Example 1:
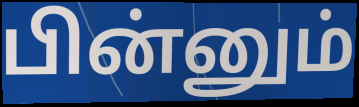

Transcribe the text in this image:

பின்னும்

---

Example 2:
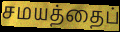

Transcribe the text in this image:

சமயத்தைப்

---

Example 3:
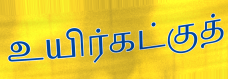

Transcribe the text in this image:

உயிர்கட்குத்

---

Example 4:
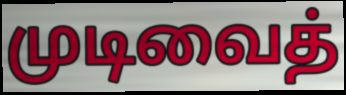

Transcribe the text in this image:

முடிவைத்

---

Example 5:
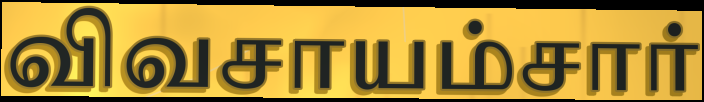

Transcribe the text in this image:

விவசாயம்சார்